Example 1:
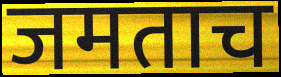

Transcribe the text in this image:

जमताच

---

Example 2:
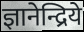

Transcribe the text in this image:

ज्ञानेन्द्रिये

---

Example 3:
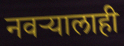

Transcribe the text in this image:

नवऱ्यालाही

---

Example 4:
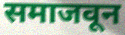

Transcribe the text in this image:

समाजवून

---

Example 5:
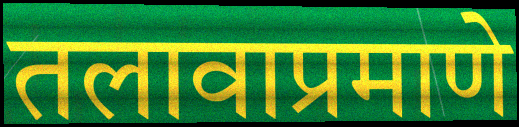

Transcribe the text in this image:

तलावाप्रमाणे